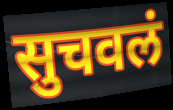
सुचवलं